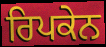
ਰਿਪਕੇਨ